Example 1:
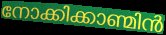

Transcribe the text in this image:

നോക്കിക്കാണ്മിൻ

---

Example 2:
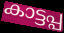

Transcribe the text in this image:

കാട്ടപ്പ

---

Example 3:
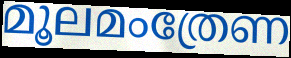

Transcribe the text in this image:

മൂലമംത്രേണ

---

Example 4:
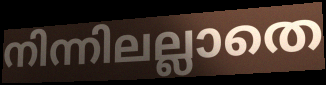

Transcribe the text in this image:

നിന്നിലല്ലാതെ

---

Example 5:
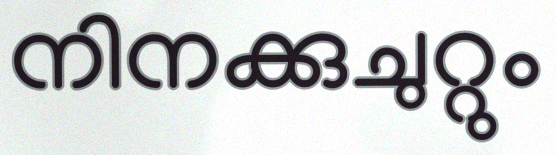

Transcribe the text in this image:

നിനക്കുചുറ്റും